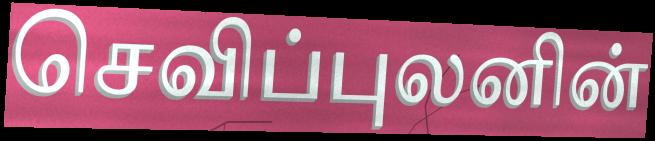
செவிப்புலனின்